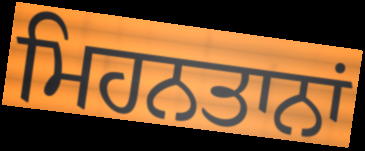
ਮਿਹਨਤਾਨਾਂ